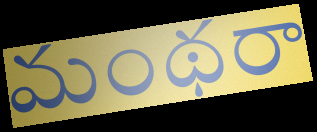
మంథరా